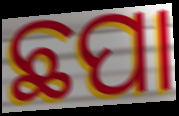
ଛପା